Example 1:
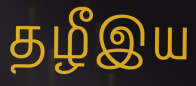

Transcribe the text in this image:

தழீஇய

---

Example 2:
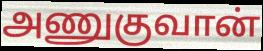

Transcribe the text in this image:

அணுகுவான்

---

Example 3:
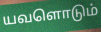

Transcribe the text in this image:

யவளொடும்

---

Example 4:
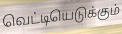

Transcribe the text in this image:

வெட்டியெடுக்கும்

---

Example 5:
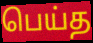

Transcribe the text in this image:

பெய்த